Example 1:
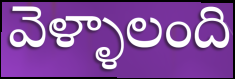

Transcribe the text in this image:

వెళ్ళాలంది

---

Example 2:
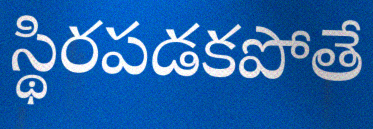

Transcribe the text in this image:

స్థిరపడకపోతే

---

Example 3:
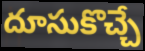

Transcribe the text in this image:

దూసుకొచ్చే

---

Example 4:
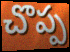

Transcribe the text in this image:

చొప్ప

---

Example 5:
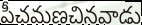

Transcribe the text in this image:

పీచమణచినవాడు